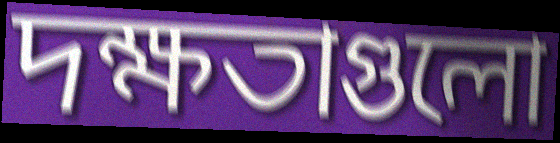
দক্ষতাগুলো